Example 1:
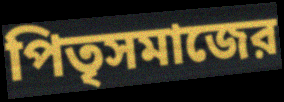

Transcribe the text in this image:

পিতৃসমাজের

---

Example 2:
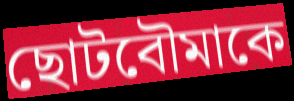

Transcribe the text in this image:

ছোটবৌমাকে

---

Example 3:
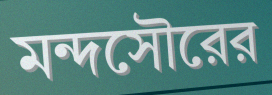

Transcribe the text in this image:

মন্দসৌরের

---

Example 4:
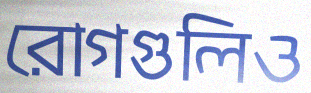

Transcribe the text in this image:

রোগগুলিও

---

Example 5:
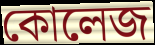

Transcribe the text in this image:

কোলেজ